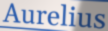
Aurelius